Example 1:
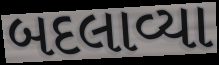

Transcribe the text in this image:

બદલાવ્યા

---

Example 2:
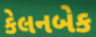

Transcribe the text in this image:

કેલનબેક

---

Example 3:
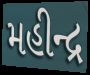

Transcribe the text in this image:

મહીન્દ્ર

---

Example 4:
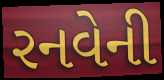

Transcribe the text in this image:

રનવેની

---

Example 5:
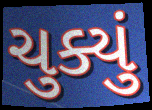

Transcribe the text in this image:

ચુક્યું